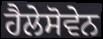
ਹੈਲੇਸੋਵੇਨ